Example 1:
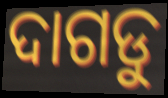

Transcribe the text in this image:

ଦାଗଡୁ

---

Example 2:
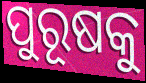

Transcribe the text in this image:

ପୁରୂଷକୁ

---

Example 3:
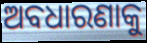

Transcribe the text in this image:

ଅବଧାରଣାକୁ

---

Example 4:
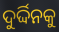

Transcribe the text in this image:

ଦୁର୍ଦ୍ଦିନକୁ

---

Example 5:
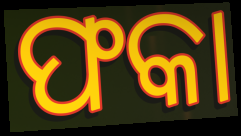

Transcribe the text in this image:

ଫକା